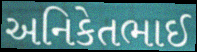
અનિકેતભાઈ